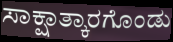
ಸಾಕ್ಷಾತ್ಕಾರಗೊಂಡು